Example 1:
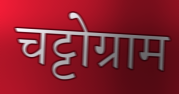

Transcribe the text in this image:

चट्टोग्राम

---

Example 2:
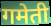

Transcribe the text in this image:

गमेती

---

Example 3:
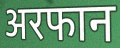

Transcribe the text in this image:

अरफान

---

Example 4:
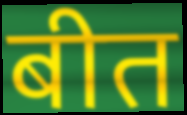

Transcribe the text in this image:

बीत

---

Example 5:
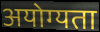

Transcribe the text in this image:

अयोग्यता